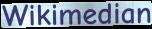
Wikimedian